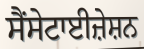
ਸੈਂਸੇਟਾਈਜ਼ੇਸ਼ਨ